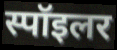
स्पॉइलर